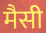
मैसी